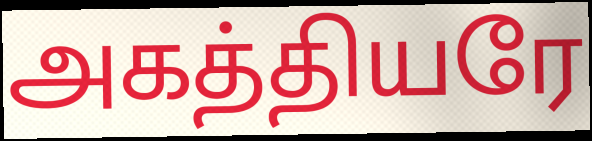
அகத்தியரே